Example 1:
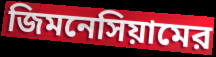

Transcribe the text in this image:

জিমনেসিয়ামের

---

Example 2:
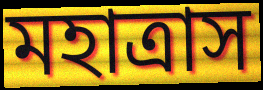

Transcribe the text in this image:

মহাত্রাস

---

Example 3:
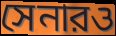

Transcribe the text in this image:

সেনারও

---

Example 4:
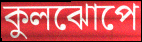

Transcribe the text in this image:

কুলঝোপে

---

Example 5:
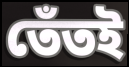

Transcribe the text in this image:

তেঁতই